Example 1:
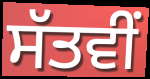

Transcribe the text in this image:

ਸੱਤਵੀਂ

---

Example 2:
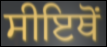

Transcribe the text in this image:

ਸੀਇਥੋਂ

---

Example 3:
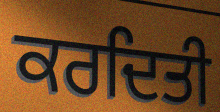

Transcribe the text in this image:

ਕਰਦਿਤੀ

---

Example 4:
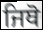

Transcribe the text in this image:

ਜਿਥੋ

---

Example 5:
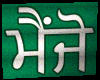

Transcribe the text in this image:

ਮੈਂਜੋ